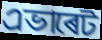
এভাৰেট